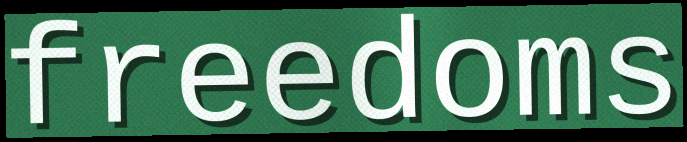
freedoms